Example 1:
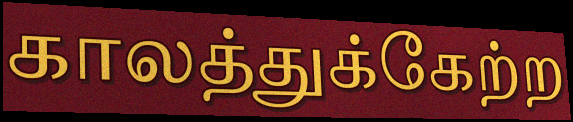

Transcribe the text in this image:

காலத்துக்கேற்ற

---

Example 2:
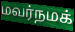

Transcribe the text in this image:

மவர்நமக்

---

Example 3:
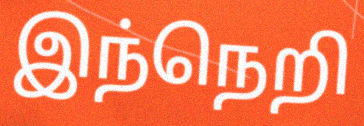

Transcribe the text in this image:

இந்நெறி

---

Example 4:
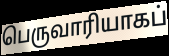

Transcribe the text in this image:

பெருவாரியாகப்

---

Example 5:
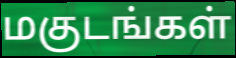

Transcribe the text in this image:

மகுடங்கள்